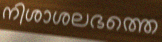
നിശാശലഭത്തെ